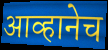
आव्हानेच